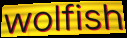
wolfish